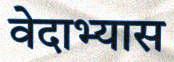
वेदाभ्यास